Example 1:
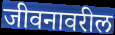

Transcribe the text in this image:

जीवनावरील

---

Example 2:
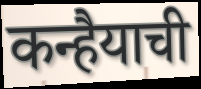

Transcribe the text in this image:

कन्हैयाची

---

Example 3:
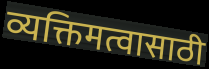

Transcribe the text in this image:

व्यक्तिमत्वासाठी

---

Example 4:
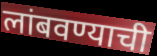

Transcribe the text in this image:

लांबवण्याची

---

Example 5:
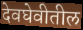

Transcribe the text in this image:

देवघेवीतील